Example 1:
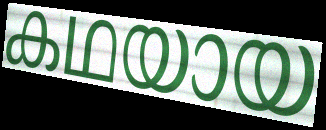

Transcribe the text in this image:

കഥയായ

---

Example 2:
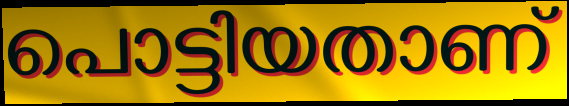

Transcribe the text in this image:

പൊട്ടിയതാണ്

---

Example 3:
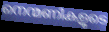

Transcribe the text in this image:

നെന്മണികളുടെ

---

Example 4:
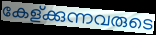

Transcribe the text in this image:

കേള്ക്കുന്നവരുടെ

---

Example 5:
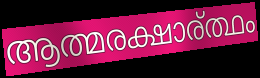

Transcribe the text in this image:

ആത്മരക്ഷാര്ത്ഥം